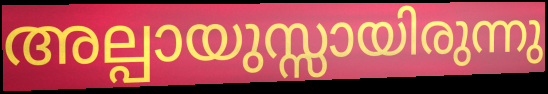
അല്പായുസ്സായിരുന്നു